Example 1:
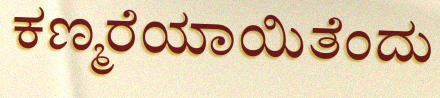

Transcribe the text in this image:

ಕಣ್ಮರೆಯಾಯಿತೆಂದು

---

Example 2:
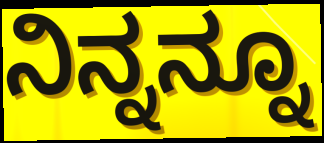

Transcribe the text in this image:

ನಿನ್ನನ್ನೂ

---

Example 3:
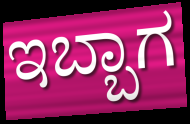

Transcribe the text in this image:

ಇಬ್ಬಾಗ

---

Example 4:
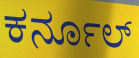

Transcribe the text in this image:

ಕರ್ನೂಲ್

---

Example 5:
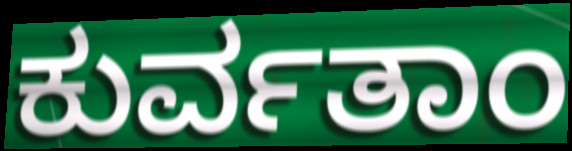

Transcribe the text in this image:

ಕುರ್ವತಾಂ